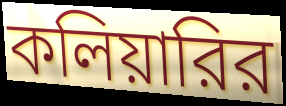
কলিয়ারির